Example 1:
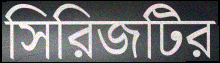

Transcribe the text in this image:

সিরিজটির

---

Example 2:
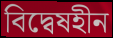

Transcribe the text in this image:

বিদ্বেষহীন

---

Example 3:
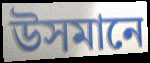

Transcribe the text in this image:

উসমানে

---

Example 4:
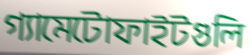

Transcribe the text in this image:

গ্যামেটোফাইটগুলি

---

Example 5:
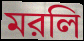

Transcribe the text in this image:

মরলি